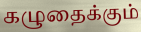
கழுதைக்கும்